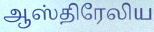
ஆஸ்திரேலிய